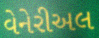
વેનેરીઅલ